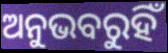
ଅନୁଭବରୁହିଁ